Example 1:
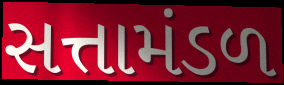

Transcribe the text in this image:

સત્તામંડળ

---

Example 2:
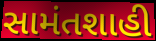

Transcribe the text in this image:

સામંતશાહી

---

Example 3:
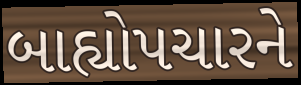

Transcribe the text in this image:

બાહ્યોપચારને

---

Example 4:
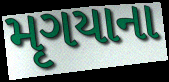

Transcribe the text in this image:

મૃગયાના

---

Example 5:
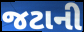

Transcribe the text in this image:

જટાની